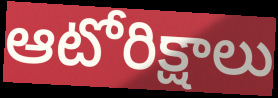
ఆటోరిక్షాలు